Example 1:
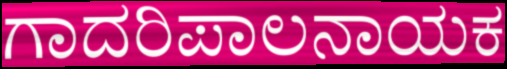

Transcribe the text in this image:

ಗಾದರಿಪಾಲನಾಯಕ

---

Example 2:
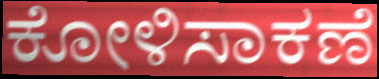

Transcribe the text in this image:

ಕೋಳಿಸಾಕಣೆ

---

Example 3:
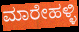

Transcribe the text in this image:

ಮಾರೇಹಳ್ಳಿ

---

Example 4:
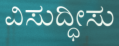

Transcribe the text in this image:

ವಿಸುದ್ಧೀಸು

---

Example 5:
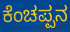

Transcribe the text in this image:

ಕೆಂಚಪ್ಪನ